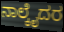
ನಾಲ್ಕೈದರ